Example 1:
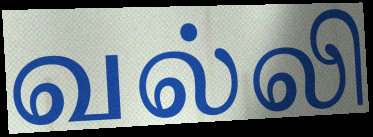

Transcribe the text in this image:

வல்லி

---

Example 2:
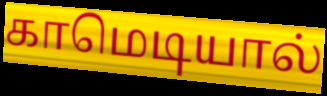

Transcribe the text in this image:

காமெடியால்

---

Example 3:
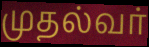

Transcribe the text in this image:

முதல்வர்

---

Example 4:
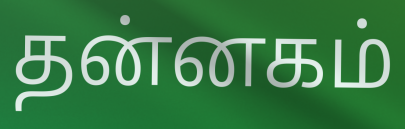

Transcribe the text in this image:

தன்னகம்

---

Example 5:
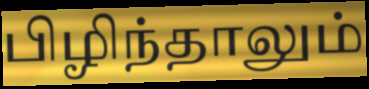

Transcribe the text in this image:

பிழிந்தாலும்